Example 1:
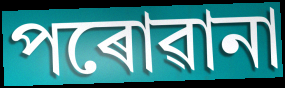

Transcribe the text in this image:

পৰোৱানা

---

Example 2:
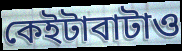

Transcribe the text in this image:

কেইটাবাটাও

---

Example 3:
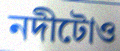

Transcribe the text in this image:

নদীটোও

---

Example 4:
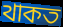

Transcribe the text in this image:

থাকত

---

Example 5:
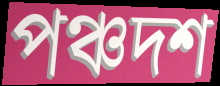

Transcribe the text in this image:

পঞ্চদশ